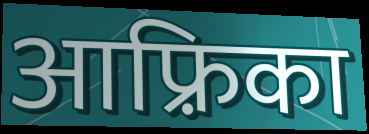
आफ़्रिका